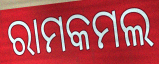
ରାମକମଲ